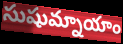
సుషుమ్నాయాం